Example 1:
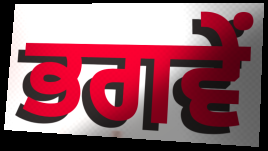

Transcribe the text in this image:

ਭਗਵੇਂ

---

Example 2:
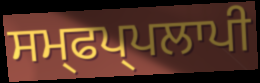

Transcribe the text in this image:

ਸਮ੍ਫਪ੍ਪਲਾਪੀ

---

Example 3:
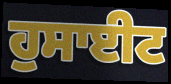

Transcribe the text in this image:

ਹੁਸਾਈਟ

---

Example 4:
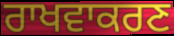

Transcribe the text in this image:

ਰਾਖਵਾਕਰਣ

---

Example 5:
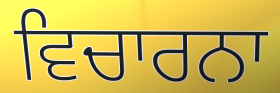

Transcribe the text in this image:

ਵਿਚਾਰਨਾ